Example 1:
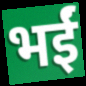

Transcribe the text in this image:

भईं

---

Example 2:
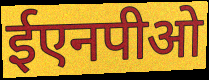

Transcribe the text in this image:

ईएनपीओ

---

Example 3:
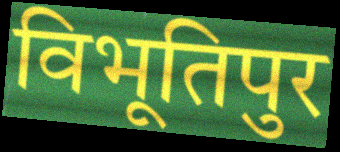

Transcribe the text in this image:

विभूतिपुर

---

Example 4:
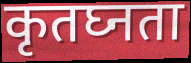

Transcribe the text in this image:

कृतघ्नता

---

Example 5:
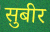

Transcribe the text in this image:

सुबीर